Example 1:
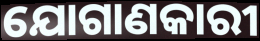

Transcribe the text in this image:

ଯୋଗାଣକାରୀ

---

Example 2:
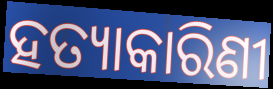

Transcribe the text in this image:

ହତ୍ୟାକାରିଣୀ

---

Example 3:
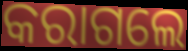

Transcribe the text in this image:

କରାଗଲେ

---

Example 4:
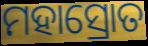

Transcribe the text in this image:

ମହାସ୍ରୋତ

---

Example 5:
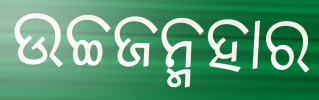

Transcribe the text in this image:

ଉଚ୍ଚଜନ୍ମହାର